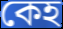
কেহ